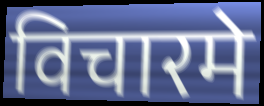
विचारमे